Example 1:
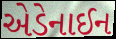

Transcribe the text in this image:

એડેનાઈન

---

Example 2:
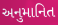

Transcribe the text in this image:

અનુમાનિત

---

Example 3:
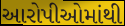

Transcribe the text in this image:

આરોપીઓમાંથી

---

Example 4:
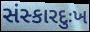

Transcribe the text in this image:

સંસ્કારદુઃખ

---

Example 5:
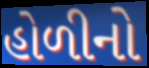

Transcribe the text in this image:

હોળીનો